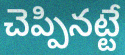
చెప్పినట్టే